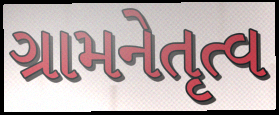
ગ્રામનેતૃત્વ